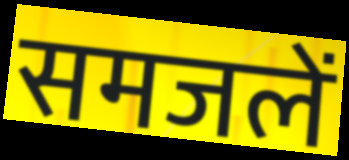
समजलें